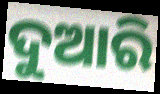
ଦୁଆରି